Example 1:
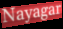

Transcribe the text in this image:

Nayagar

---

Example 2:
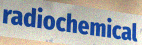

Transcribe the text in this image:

radiochemical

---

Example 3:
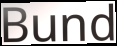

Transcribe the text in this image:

Bund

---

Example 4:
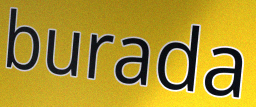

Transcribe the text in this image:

burada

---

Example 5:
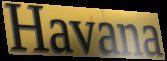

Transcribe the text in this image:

Havana